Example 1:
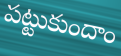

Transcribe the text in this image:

పట్టుకుందాం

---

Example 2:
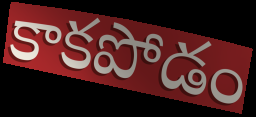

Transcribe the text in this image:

కాకపోడం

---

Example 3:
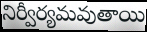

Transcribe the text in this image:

నిర్వీర్యమవుతాయి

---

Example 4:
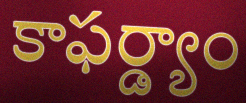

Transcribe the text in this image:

కాఫర్డ్యాం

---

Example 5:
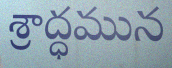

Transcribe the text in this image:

శ్రాద్ధమున